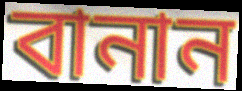
বানান